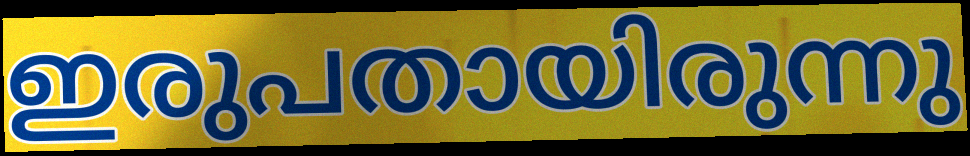
ഇരുപതായിരുന്നു